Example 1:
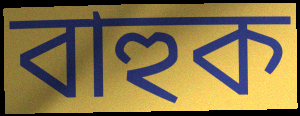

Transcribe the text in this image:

বাহুক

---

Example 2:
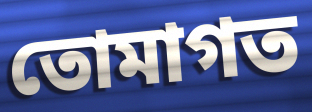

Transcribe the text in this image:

তোমাগত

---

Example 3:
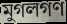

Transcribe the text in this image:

মুগলগণ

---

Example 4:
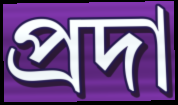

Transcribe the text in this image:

প্রদা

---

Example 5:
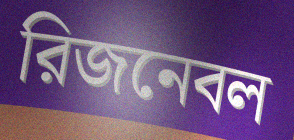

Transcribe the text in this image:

রিজনেবল